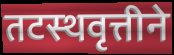
तटस्थवृत्तीने